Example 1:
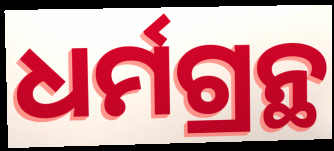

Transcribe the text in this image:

ଧର୍ମଗ୍ରନ୍ଥ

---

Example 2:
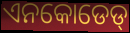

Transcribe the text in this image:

ଏନକୋଡେଡ୍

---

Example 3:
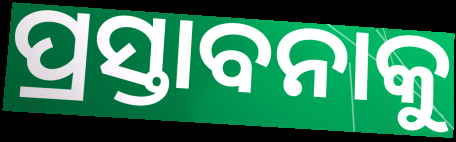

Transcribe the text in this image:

ପ୍ରସ୍ତାବନାକୁ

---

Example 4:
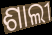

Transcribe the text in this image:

ଶାଲୀ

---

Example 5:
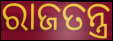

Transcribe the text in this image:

ରାଜତନ୍ତ୍ର